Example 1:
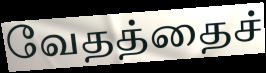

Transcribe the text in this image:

வேதத்தைச்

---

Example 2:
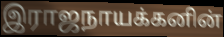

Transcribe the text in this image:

இராஜநாயக்கனின்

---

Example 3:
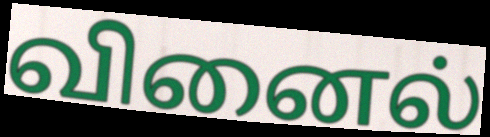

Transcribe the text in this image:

வினைல்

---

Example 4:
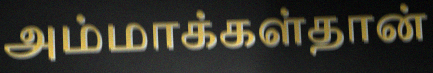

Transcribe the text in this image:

அம்மாக்கள்தான்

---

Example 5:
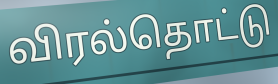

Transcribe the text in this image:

விரல்தொட்டு